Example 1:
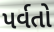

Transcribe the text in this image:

પર્વતો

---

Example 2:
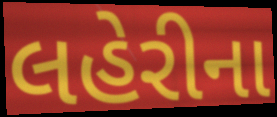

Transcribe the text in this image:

લહેરીના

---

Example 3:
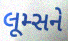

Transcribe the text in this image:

લૂમ્સને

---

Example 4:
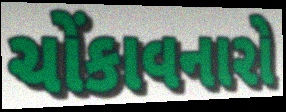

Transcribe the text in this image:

ચોંકાવનારો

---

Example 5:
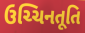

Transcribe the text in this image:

ઉચ્ચિનતૂતિ